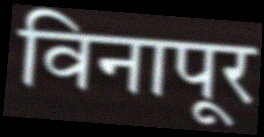
विनापूर